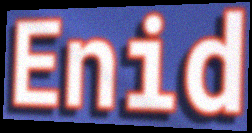
Enid